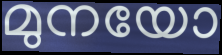
മുനയോ